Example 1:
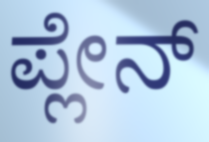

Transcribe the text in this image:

ಪ್ಲೇನ್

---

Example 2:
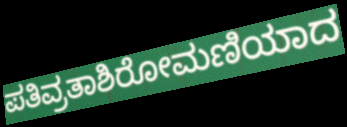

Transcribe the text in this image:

ಪತಿವ್ರತಾಶಿರೋಮಣಿಯಾದ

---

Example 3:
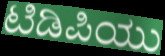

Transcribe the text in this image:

ಟಿಡಿಪಿಯು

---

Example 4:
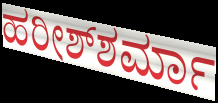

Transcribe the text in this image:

ಹರೀಶ್‌ಶರ್ಮಾ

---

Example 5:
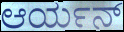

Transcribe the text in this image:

ಆರ್ಯನ್